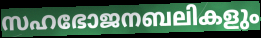
സഹഭോജനബലികളും